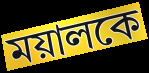
ময়ালকে